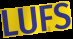
LUFS